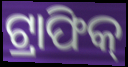
ଟ୍ରାଫିକ୍